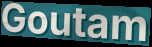
Goutam